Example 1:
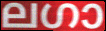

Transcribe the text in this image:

ലഗാ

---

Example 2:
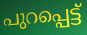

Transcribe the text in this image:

പുറപ്പെട്ട്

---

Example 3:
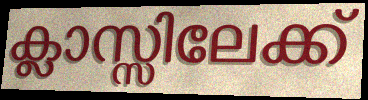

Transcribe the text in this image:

ക്ലാസ്സിലേക്ക്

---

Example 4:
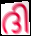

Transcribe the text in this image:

ദി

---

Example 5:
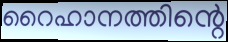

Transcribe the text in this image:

റൈഹാനത്തിന്റെ